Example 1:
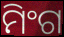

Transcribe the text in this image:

ମିଂଗ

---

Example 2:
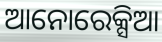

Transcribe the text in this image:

ଆନୋରେକ୍ସିଆ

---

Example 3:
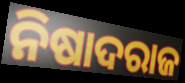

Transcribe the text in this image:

ନିଷାଦରାଜ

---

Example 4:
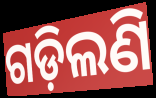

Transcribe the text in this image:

ଗଡ଼ିଲଣି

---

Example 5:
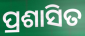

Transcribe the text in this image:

ପ୍ରଶାସିତ